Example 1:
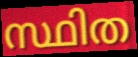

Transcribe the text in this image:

സ്ഥിത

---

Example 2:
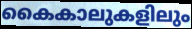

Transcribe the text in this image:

കൈകാലുകളിലും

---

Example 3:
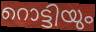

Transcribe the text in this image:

റൊട്ടിയും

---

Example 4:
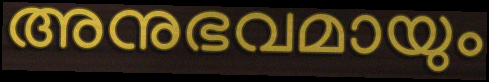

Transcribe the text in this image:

അനുഭവമായും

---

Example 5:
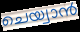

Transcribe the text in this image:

ചെയ്വാൻ